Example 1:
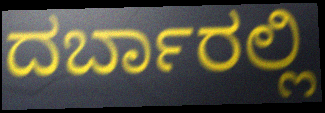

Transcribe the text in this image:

ದರ್ಬಾರಲ್ಲಿ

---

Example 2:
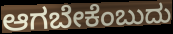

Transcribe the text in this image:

ಆಗಬೇಕೆಂಬುದು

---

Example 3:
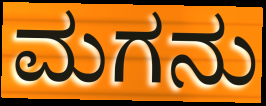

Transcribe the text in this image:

ಮಗನು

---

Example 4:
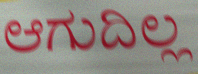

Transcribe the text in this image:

ಆಗುದಿಲ್ಲ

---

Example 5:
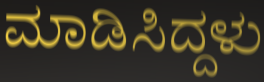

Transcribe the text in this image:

ಮಾಡಿಸಿದ್ದಳು